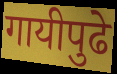
गायीपुढे